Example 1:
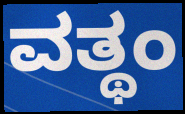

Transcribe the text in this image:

ವತ್ಥಂ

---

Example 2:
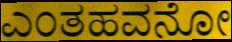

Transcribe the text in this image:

ಎಂತಹವನೋ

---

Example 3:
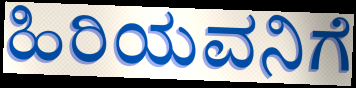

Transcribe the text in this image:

ಹಿರಿಯವನಿಗೆ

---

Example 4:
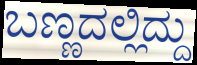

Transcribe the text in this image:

ಬಣ್ಣದಲ್ಲಿದ್ದು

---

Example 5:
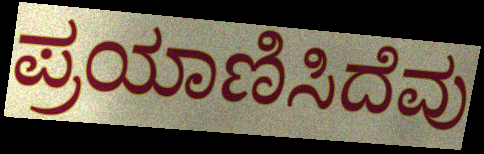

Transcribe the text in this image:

ಪ್ರಯಾಣಿಸಿದೆವು